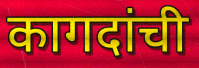
कागदांची